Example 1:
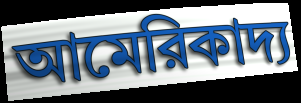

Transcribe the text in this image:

আমেরিকাদ্য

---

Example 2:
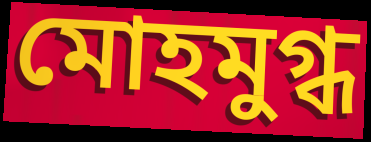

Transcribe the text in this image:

মোহমুগ্ধ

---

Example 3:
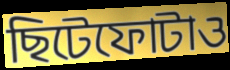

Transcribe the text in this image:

ছিটেফোটাও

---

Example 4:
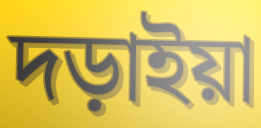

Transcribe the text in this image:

দড়াইয়া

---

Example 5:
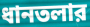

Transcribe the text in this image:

ধানতলার